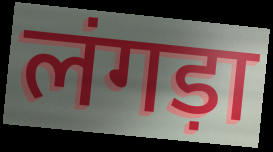
लंगड़ा